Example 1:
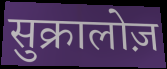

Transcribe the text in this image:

सुक्रालोज़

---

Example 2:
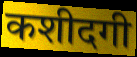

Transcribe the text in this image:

कशीदगी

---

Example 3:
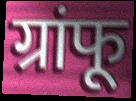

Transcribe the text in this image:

ग्रांफू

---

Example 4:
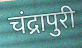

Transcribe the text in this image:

चंद्रापुरी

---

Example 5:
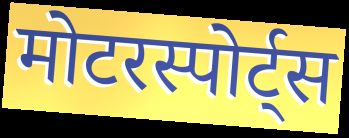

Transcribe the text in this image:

मोटरस्पोर्ट्स